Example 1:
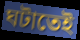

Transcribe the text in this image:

ঘটাতেই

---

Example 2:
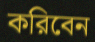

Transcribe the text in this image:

করিবেন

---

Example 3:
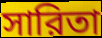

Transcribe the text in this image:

সারিতা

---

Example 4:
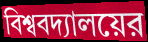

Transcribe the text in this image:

বিশ্ববদ্যালয়ের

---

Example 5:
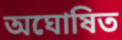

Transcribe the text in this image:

অঘোষিত